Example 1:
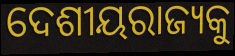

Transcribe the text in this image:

ଦେଶୀୟରାଜ୍ୟକୁ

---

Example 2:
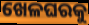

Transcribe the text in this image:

ଖେଳଘରକୁ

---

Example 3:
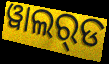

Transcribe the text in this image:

ୱାଲର୍‌ଡ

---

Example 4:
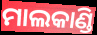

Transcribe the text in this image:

ମାଲକାଣ୍ଡି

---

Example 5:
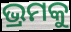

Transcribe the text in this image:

ଭ୍ରମକୁ